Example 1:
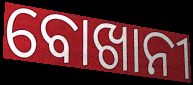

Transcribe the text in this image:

ବୋଖାନୀ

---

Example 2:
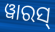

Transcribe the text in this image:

ୱାରସ୍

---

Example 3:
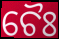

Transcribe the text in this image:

ଚୈଃ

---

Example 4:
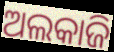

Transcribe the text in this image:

ଅଲକାଜି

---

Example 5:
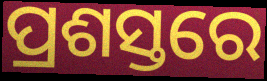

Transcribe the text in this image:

ପ୍ରଶସ୍ତରେ